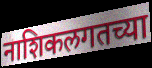
नाशिकलगतच्या